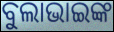
ବୁଲାଭାଇଙ୍କ